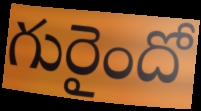
గురైందో